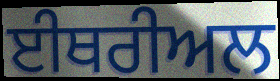
ਈਥਰੀਅਲ